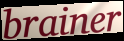
brainer